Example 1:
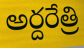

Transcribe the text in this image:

అర్దరేత్రి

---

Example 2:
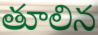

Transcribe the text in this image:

తూలిన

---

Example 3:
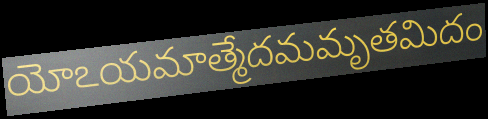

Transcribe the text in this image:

యోఽయమాత్మేదమమృతమిదం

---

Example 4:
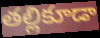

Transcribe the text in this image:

తల్లికూడా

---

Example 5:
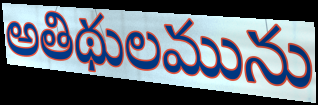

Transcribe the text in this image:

అతిథులమును